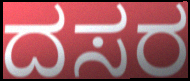
ದಸರ